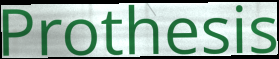
Prothesis